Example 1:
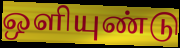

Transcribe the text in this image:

ஒளியுண்டு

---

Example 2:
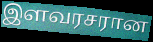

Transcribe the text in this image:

இளவரசரான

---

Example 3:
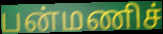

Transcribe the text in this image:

பன்மணிச்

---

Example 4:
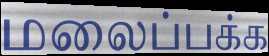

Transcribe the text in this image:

மலைப்பக்க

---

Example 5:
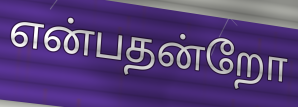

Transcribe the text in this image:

என்பதன்றோ